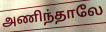
அணிந்தாலே